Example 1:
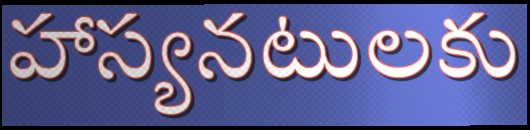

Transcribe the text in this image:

హాస్యనటులకు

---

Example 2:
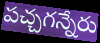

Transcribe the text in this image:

పచ్చగన్నేరు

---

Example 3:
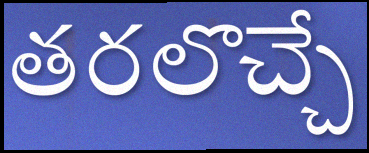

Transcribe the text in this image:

తరలొచ్చే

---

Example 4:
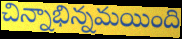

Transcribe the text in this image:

చిన్నాభిన్నమయింది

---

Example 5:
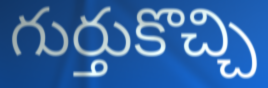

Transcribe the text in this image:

గుర్తుకొచ్చి